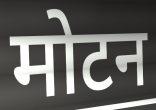
मोटन